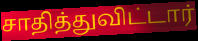
சாதித்துவிட்டார்